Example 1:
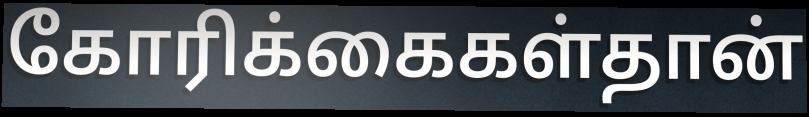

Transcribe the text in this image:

கோரிக்கைகள்தான்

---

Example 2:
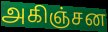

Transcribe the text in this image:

அகிஞ்சன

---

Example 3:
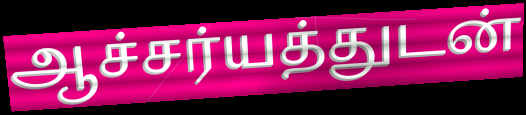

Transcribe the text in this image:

ஆச்சர்யத்துடன்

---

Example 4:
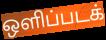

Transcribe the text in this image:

ஒளிப்படக்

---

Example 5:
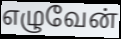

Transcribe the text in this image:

எழுவேன்